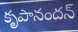
కృపానందన్